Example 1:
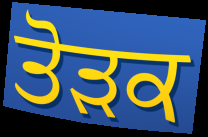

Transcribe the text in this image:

ਤੋੜਕ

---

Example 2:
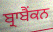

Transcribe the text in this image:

ਬ੍ਰਾਬੈਂਕਨ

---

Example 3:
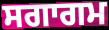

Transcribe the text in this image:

ਸਗਾਗਮ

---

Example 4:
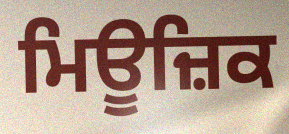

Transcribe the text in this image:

ਮਿਊਜ਼ਿਕ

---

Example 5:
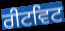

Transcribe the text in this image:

ਰੀਟਵਿਟ